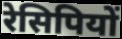
रेसिपियों